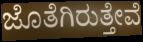
ಜೊತೆಗಿರುತ್ತೇವೆ